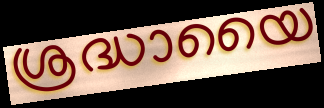
ശ്രദ്ധായൈ